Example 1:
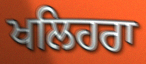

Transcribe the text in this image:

ਖਲਿਹਰਾ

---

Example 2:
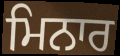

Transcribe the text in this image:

ਮਿਨਾਰ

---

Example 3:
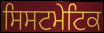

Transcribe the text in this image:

ਸਿਸਟਮੇਟਿਕ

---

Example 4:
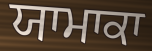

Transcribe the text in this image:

ਯਾਮਾਕਾ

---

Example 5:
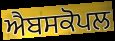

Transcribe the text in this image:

ਐਬਸਕੋਪਲ